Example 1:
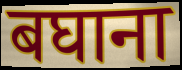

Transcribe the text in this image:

बघाना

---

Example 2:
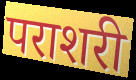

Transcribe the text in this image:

पराशरी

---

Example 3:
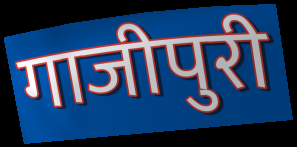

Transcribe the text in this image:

गाजीपुरी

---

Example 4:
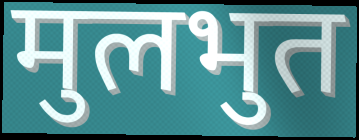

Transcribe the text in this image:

मुलभुत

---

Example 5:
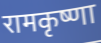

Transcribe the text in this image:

रामकृष्णा